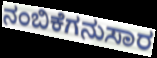
ನಂಬಿಕೆಗನುಸಾರ